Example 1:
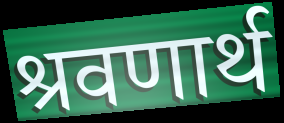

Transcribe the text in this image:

श्रवणार्थ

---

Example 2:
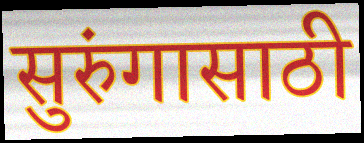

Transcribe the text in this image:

सुरुंगासाठी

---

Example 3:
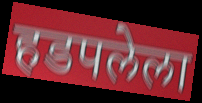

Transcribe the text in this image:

हडपलेला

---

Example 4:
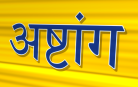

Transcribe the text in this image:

अष्टांग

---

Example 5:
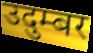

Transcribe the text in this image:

उदुम्बर